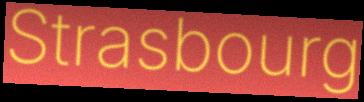
Strasbourg